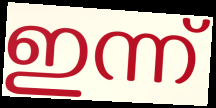
ഇന്ന്